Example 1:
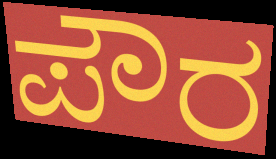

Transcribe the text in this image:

ಪೌರ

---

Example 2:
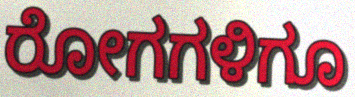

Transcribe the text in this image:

ರೋಗಗಳಿಗೂ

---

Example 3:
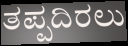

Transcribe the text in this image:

ತಪ್ಪದಿರಲು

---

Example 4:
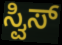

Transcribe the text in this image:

ಸ್ವಿಸ್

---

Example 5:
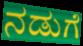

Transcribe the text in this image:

ನಡುಗೆ